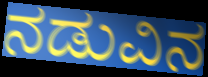
ನಡುವಿನ